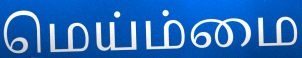
மெய்ம்மை